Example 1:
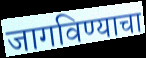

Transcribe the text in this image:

जागविण्याचा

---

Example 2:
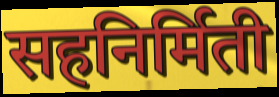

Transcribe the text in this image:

सहनिर्मिती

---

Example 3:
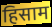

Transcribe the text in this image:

हिसाम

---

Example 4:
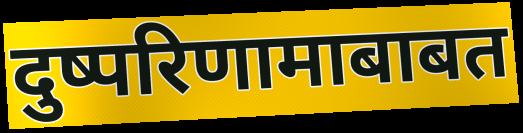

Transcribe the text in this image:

दुष्परिणामाबाबत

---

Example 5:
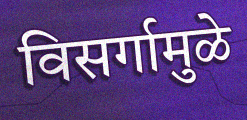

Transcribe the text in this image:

विसर्गामुळे